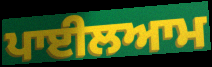
ਪਾਈਲਆਮ